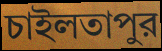
চাইলতাপুর